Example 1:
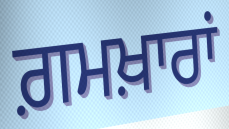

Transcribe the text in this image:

ਗ਼ਮਖ਼ਾਰਾਂ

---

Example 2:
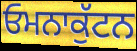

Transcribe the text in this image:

ਓਮਨਾਕੁੱਟਨ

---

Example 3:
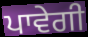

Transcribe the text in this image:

ਪਾਵੇਗੀ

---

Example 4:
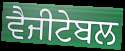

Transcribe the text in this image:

ਵੈਜੀਟੇਬਲ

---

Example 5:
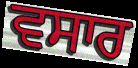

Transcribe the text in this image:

ਵਸਾਰ